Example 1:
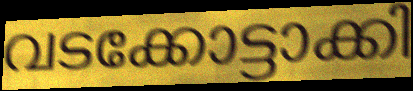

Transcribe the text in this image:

വടക്കോട്ടാക്കി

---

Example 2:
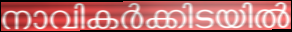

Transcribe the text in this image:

നാവികർക്കിടയിൽ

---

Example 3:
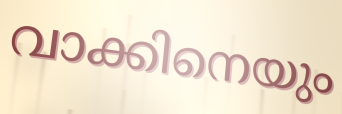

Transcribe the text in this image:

വാക്കിനെയും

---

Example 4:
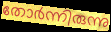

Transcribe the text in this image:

തോർന്നിരുന്നു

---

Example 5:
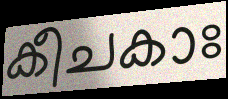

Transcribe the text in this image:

കീചകാഃ